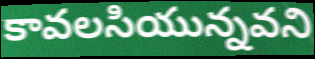
కావలసియున్నవని